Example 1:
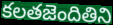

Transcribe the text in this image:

కలతజెందితిని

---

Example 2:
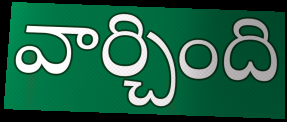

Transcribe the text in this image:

వార్చింది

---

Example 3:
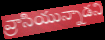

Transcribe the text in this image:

వ్రాసియున్నాడని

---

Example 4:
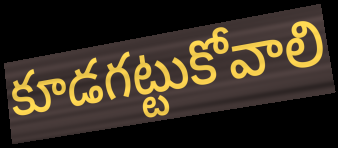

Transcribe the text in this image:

కూడగట్టుకోవాలి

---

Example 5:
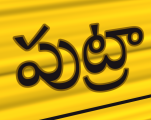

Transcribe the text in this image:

పుట్రా